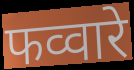
फव्वारे